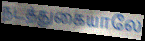
நடத்துகையாலே